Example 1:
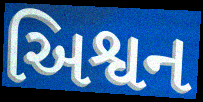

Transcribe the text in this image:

અિશ્વન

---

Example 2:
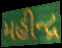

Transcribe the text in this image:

મહીન્દ્ર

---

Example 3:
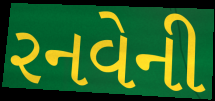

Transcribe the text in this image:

રનવેની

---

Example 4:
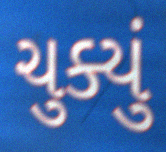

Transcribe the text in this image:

ચુક્યું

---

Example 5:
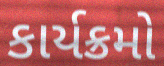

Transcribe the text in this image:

કાર્યક્રમો